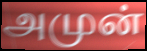
அமுன்